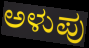
ಅಳುಪು